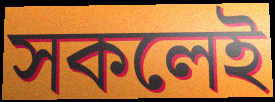
সকলেই